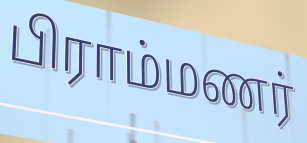
பிராம்மணர்